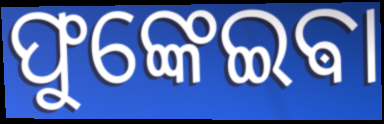
ଫୁଙ୍କେଇଵା